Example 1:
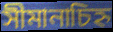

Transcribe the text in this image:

সীমানাচিহ্ন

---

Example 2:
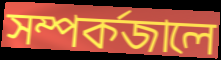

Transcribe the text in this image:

সম্পর্কজালে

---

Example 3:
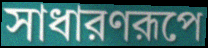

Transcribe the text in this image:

সাধারণরূপে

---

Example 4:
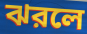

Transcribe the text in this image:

ঝরলে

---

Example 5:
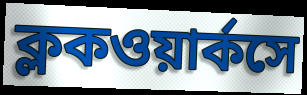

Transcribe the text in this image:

ক্লকওয়ার্কসে